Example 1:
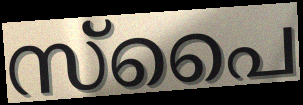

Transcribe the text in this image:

സ്പൈ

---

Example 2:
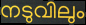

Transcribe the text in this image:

നടുവിലും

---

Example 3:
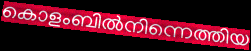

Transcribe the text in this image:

കൊളംബിൽനിന്നെത്തിയ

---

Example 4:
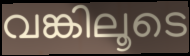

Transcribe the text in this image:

വങ്കിലൂടെ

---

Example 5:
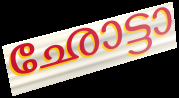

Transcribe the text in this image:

ഛോട്ടാ